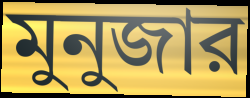
মুনুজার